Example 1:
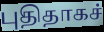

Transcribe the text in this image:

புதிதாகச்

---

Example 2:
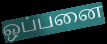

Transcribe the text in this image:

ஒப்பனை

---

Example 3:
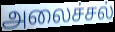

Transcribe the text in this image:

அலைச்சல்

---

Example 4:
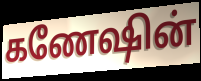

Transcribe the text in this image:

கணேஷின்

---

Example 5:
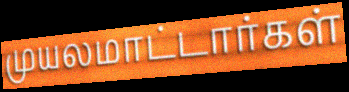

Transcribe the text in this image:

முயலமாட்டார்கள்